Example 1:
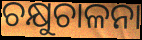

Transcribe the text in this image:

ଚକ୍ଷୁଚାଳନା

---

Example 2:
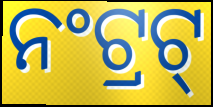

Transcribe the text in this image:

ନଂଟ୍ରଟ୍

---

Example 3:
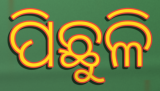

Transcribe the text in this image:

ପିଛୁଳି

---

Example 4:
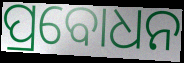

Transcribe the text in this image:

ପ୍ରବୋଧନ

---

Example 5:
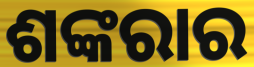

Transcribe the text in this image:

ଶଙ୍କରାର